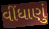
વીંધાણું